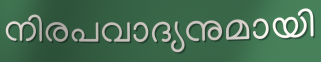
നിരപവാദ്യനുമായി